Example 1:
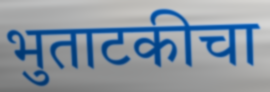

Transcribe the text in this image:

भुताटकीचा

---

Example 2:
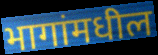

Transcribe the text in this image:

भागांमधील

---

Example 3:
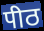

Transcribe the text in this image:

पीठ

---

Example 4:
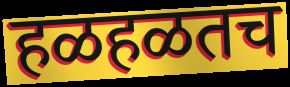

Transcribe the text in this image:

हळहळतच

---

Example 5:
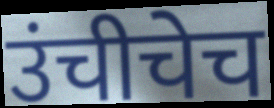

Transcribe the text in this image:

उंचीचेच